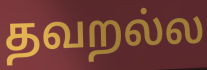
தவறல்ல